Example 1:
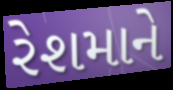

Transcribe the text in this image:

રેશમાને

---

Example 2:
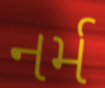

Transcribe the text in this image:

નર્મ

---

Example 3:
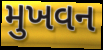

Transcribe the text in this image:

મુખવન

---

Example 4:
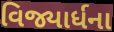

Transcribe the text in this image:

વિજ્યાર્ધના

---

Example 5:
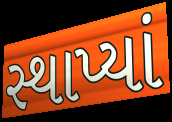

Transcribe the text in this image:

સ્થાપ્યાં